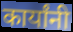
कार्यांनी